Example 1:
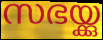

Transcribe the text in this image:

സഭയ്ക്കു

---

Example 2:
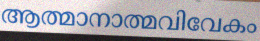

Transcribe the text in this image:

ആത്മാനാത്മവിവേകം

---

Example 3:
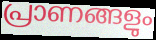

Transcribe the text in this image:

പ്രാണങ്ങളും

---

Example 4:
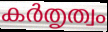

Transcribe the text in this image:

കർതൃത്വം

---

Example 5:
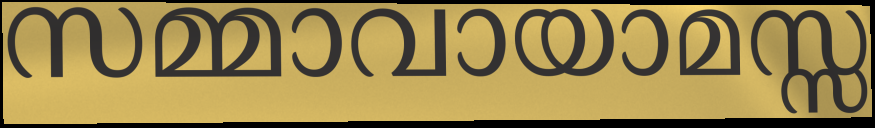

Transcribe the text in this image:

സമ്മാവായാമസ്സ